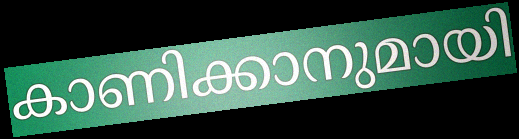
കാണിക്കാനുമായി